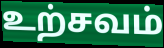
உற்சவம்